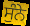
ਸੁੰਨੇ